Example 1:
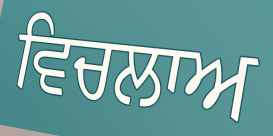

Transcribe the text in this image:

ਵਿਚਲਾਅ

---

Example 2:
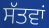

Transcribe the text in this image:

ਸੱਤਵਾਂ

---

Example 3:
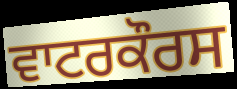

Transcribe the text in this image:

ਵਾਟਰਕੌਰਸ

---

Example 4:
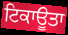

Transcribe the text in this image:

ਟਿਕਾਊਤਾ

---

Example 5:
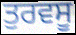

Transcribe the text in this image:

ਤੁਰਵਸੂ